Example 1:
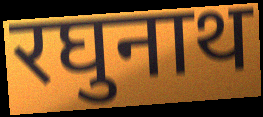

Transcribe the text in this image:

रघुनाथ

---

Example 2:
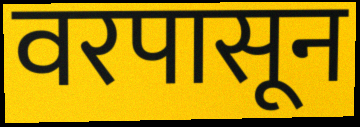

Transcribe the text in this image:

वरपासून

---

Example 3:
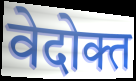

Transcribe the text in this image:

वेदोक्त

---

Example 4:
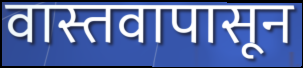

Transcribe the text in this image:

वास्तवापासून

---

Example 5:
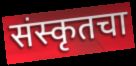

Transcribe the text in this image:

संस्कृतचा